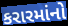
કરારમાંનો